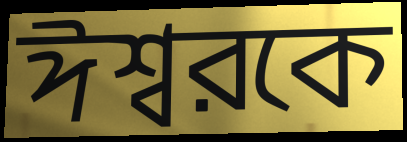
ঈশ্বরকে